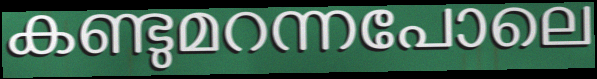
കണ്ടുമറന്നപോലെ